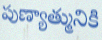
పుణ్యాత్మునికి